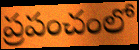
ప్రపంచంలో